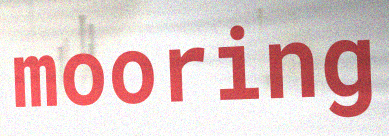
mooring